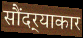
सौंदर्याकार